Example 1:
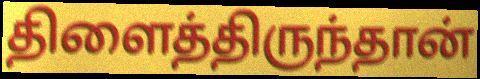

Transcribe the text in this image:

திளைத்திருந்தான்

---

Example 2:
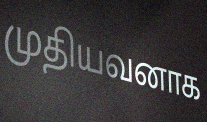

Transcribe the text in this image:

முதியவனாக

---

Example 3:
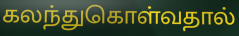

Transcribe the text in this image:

கலந்துகொள்வதால்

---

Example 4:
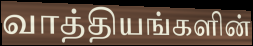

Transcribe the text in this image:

வாத்தியங்களின்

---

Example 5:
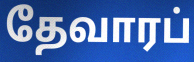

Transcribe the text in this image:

தேவாரப்